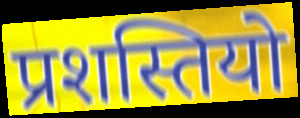
प्रशस्तियो